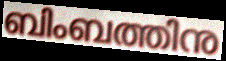
ബിംബത്തിനു